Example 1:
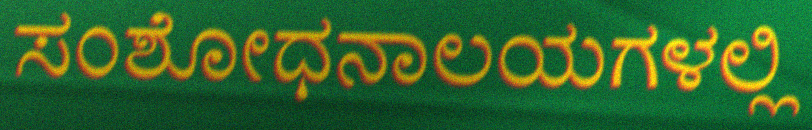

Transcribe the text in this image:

ಸಂಶೋಧನಾಲಯಗಳಲ್ಲಿ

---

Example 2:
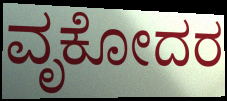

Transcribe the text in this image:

ವೃಕೋದರ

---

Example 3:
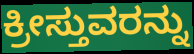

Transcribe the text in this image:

ಕ್ರೀಸ್ತುವರನ್ನು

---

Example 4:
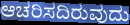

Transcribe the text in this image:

ಆಚರಿಸದಿರುವುದು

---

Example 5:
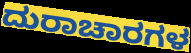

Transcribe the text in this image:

ದುರಾಚಾರಗಳ